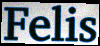
Felis